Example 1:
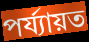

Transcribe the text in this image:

পৰ্য্যায়ত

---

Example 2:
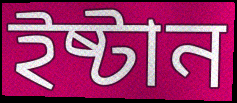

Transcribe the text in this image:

ইষ্টান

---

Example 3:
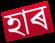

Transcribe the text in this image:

হাৰ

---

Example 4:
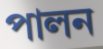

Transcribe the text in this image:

পালন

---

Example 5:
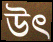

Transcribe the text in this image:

উৎ